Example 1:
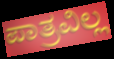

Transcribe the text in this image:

ಪಾತ್ರವಿಲ್ಲ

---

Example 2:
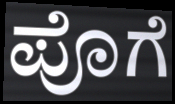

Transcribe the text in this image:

ಪೊಗೆ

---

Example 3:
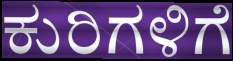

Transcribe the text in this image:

ಕುರಿಗಳಿಗೆ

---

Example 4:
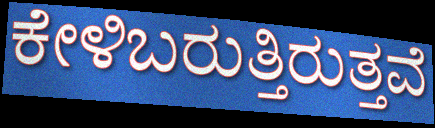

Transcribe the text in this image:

ಕೇಳಿಬರುತ್ತಿರುತ್ತವೆ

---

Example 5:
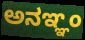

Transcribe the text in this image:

ಅನಞ್ಞಂ